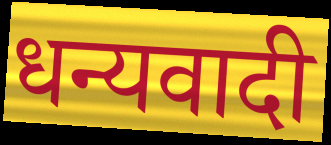
धन्यवादी